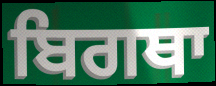
ਬਿਗਥਾ